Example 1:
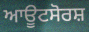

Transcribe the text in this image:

ਆਊਟਸੋਰਸ਼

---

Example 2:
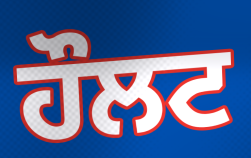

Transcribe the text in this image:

ਹੌਲਟ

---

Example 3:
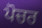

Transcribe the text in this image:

ਪੋਚਰ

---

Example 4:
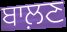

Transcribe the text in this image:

ਬਾਲ਼ਣ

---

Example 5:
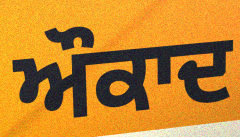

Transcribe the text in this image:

ਔਕਾਦ